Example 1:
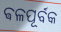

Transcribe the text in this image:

ଵଳପୂର୍ବକ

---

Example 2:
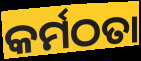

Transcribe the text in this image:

କର୍ମଠତା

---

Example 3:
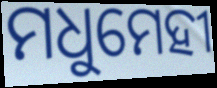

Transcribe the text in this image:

ମଧୁମେହୀ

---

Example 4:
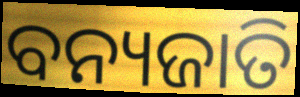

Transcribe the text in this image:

ବନ୍ୟଜାତି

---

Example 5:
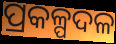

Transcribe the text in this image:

ପ୍ରକଳ୍ପଦଳ